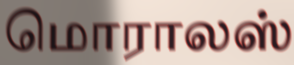
மொராலஸ்